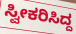
ಸ್ವೀಕರಿಸಿದ್ದ